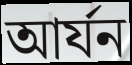
আর্যন